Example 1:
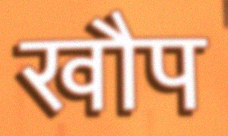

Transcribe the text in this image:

खौप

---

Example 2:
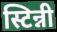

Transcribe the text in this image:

स्टिन्नी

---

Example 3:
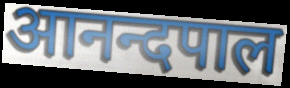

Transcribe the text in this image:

आनन्दपाल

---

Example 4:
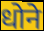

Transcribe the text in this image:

धोने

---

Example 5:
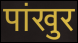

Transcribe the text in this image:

पांखुर